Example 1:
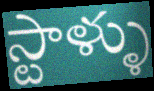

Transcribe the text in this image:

స్టాళ్ళు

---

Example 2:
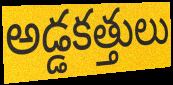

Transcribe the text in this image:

అడ్డకత్తులు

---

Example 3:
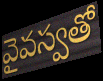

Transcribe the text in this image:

వైవస్వతో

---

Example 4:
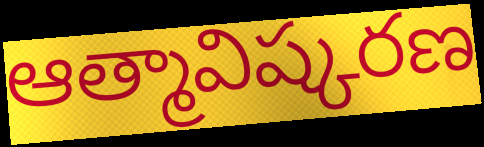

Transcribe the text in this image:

ఆత్మావిష్కరణ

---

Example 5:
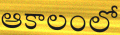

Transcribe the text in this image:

ఆకాలంలో